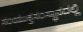
ಸಂಯುಕ್ತಸಂಸ್ಥಾನದಲ್ಲಿ